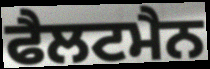
ਫੈਲਟਮੈਨ